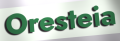
Oresteia